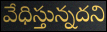
వేధిస్తున్నదని